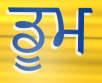
ਡੂਮ